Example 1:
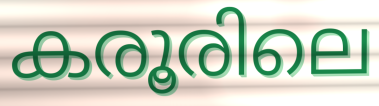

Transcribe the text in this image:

കരൂരിലെ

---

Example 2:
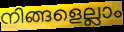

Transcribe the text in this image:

നിങ്ങളെല്ലാം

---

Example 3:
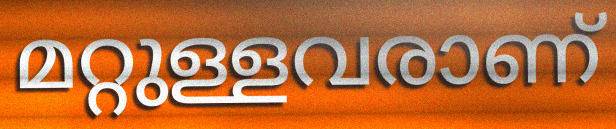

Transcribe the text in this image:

മറ്റുള്ളവരാണ്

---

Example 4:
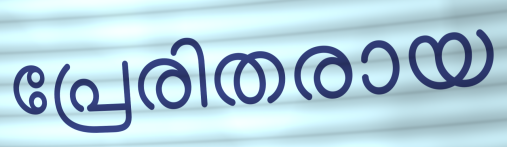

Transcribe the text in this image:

പ്രേരിതരായ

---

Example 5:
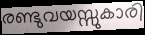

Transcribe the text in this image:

രണ്ടുവയസ്സുകാരി